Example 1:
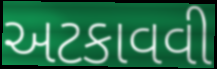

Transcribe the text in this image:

અટકાવવી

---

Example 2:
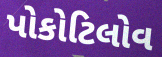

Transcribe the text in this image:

પોકોટિલોવ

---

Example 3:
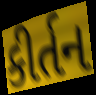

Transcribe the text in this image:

કીર્તન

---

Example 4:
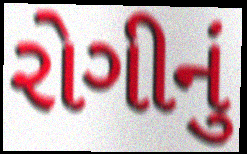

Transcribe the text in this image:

રોગીનું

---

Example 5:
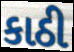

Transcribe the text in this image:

કાઠી